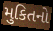
મુકિતનો